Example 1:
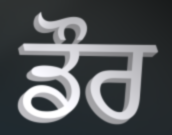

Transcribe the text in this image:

ਡੌਰ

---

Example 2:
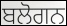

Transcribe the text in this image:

ਬਲੋਗਨ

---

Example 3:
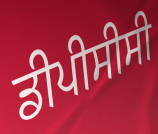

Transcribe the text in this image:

ਡੀਪੀਸੀਸੀ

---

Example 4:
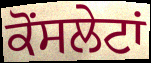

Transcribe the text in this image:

ਕੋਂਸਲੇਟਾਂ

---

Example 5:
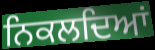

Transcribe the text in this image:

ਨਿਕਲਦਿਆਂ